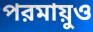
পরমায়ুও